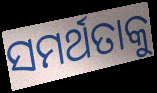
ସମର୍ଥତାକୁ